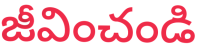
జీవించండి